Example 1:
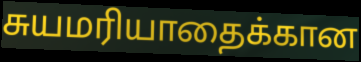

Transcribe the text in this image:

சுயமரியாதைக்கான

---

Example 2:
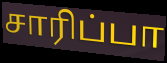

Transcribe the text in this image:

சாரிப்பா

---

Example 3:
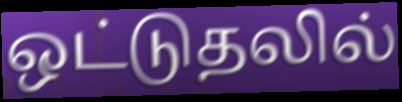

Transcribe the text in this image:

ஒட்டுதலில்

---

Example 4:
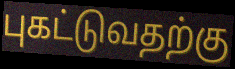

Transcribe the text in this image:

புகட்டுவதற்கு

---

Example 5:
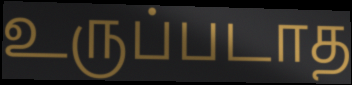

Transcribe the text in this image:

உருப்படாத